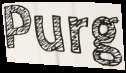
Purg